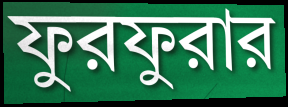
ফুরফুরার